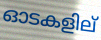
ഓടകളില്